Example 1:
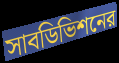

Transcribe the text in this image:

সাবডিভিশনের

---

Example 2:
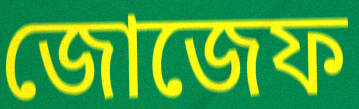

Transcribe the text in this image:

জোজেফ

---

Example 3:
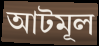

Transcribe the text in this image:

আটমূল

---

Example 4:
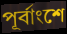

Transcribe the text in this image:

পূর্বাংশে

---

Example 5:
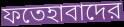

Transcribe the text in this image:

ফতেহাবাদের